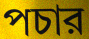
পচার